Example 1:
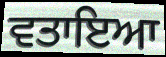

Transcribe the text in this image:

ਵਤਾਇਆ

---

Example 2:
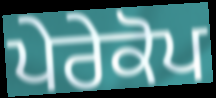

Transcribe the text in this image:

ਪੇਰੇਕੋਪ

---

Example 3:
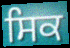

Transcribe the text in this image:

ਸਿਕ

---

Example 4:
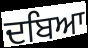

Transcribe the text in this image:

ਦਬਿਆ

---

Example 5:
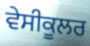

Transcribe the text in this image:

ਵੇਸੀਕੂਲਰ